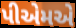
પીએમએ